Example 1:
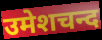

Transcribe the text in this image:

उमेशचन्द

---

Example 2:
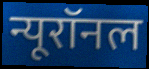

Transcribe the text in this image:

न्यूरॉनल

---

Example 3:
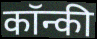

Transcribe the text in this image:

कॉन्की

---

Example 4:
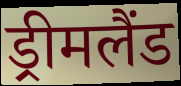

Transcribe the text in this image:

ड्रीमलैंड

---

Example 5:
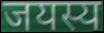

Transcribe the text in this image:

जयस्य